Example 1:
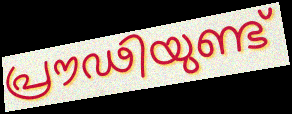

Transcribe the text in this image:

പ്രൗഢിയുണ്ട്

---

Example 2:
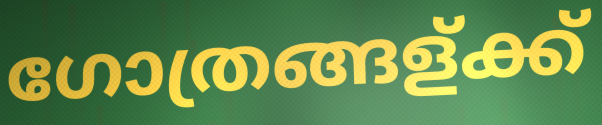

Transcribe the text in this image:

ഗോത്രങ്ങള്ക്ക്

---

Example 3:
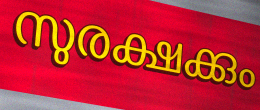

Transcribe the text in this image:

സുരക്ഷക്കും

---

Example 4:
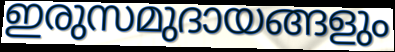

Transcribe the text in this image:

ഇരുസമുദായങ്ങളും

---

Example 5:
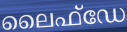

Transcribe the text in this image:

ലൈഫ്ഡേ